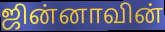
ஜின்னாவின்